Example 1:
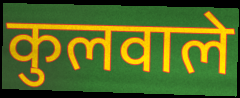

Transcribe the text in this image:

कुलवाले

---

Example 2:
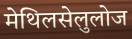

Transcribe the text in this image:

मेथिलसेलुलोज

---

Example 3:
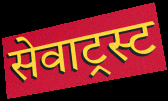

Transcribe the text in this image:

सेवाट्रस्ट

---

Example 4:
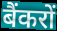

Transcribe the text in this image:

बैंकरों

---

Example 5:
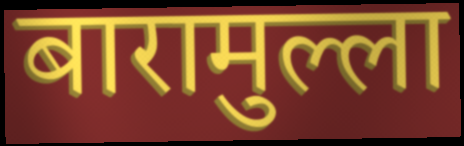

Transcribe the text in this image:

बारामुल्‍ला